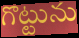
గొట్టును